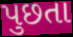
પુછતા